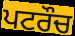
ਪਟਰੌਚ